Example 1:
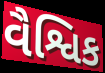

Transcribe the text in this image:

વૈશ્વિક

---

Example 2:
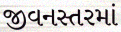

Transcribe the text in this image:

જીવનસ્તરમાં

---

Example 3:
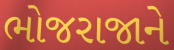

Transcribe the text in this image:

ભોજરાજાને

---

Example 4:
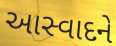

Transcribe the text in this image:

આસ્વાદને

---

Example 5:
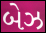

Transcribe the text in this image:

બેઝ